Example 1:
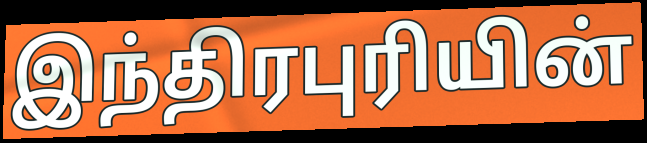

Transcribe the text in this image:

இந்திரபுரியின்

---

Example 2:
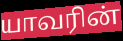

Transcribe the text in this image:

யாவரின்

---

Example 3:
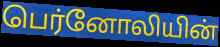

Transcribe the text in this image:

பெர்னோலியின்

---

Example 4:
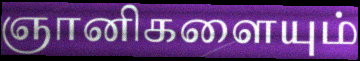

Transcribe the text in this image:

ஞானிகளையும்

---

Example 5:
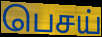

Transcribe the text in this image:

பெசய்